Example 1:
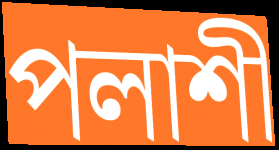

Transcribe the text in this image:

পলাশী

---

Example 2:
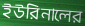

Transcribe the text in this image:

ইউরিনালের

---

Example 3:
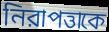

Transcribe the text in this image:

নিরাপত্তাকে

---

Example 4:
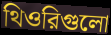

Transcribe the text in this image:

থিওরিগুলো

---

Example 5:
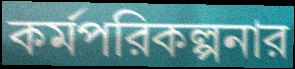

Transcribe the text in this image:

কর্মপরিকল্পনার